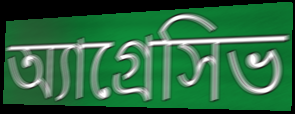
অ্যাগ্রেসিভ